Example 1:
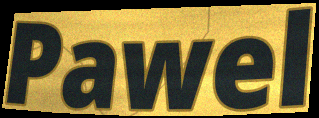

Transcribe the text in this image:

Pawel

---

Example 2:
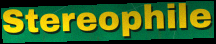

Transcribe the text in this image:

Stereophile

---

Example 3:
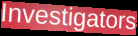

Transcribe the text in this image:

Investigators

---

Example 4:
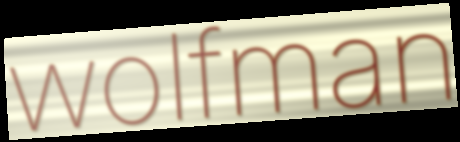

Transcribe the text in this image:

wolfman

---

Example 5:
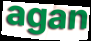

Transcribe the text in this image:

agan